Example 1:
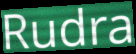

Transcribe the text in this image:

Rudra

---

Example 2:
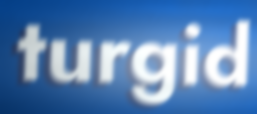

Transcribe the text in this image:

turgid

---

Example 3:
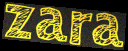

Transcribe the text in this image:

zara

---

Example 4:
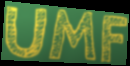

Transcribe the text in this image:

UMF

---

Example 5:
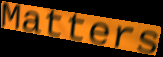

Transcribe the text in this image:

Matters